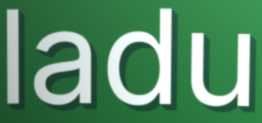
ladu